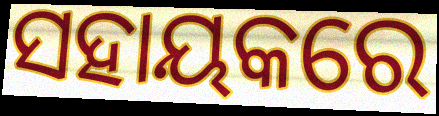
ସହାୟକରେ